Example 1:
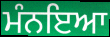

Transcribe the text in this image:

ਮੰਨਇਆ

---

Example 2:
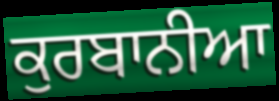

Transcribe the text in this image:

ਕੁਰਬਾਨੀਆ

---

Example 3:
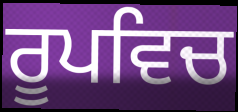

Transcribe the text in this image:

ਰੂਪਵਿਚ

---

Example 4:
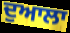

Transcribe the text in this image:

ਦੁਆਲਾ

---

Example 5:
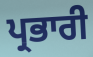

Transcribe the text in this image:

ਪ੍ਰਭਾਰੀ